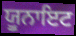
ਯੂਨਾਇਟ